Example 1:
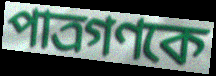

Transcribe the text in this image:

পাত্রগণকে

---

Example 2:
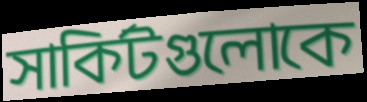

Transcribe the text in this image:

সার্কিটগুলোকে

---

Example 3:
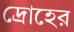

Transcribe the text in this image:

দ্রোহের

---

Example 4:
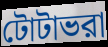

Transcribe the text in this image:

টোটাভরা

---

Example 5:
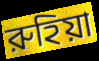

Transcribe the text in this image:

রুহিয়া